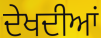
ਦੇਖਦੀਆਂ